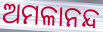
ଅମଳାନନ୍ଦ